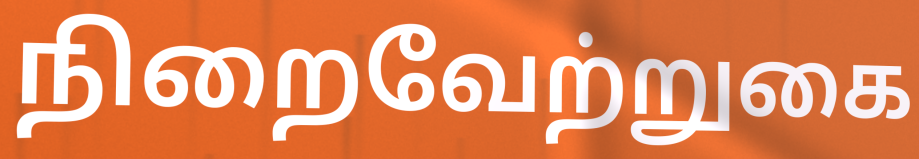
நிறைவேற்றுகை